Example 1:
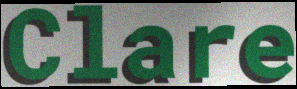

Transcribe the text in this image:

Clare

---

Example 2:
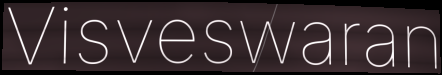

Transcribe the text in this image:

Visveswaran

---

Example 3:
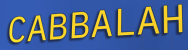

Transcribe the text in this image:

CABBALAH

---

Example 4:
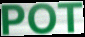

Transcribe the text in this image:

POT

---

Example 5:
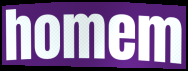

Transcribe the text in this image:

homem